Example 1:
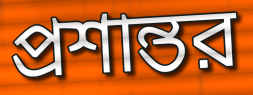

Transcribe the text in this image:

প্রশান্তর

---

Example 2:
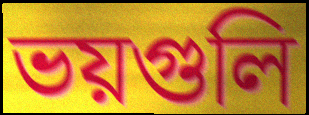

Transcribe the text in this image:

ভয়গুলি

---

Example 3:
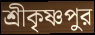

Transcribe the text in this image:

শ্রীকৃষ্ণপুর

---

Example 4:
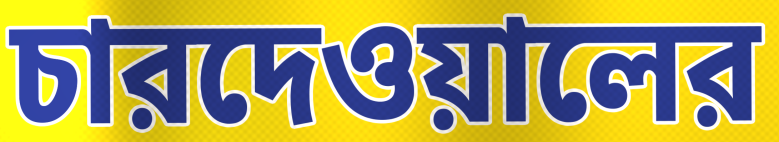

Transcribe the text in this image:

চারদেওয়ালের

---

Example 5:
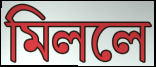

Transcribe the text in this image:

মিললে